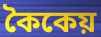
কৈকেয়